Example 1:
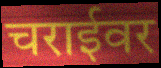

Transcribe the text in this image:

चराईवर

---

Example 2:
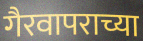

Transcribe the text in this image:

गैरवापराच्या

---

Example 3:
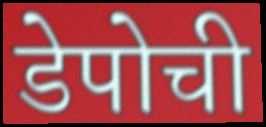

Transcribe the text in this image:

डेपोची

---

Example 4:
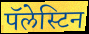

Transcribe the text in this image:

पॅलेस्टिन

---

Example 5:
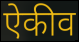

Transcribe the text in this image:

ऐकीव